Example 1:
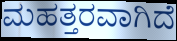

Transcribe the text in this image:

ಮಹತ್ತರವಾಗಿದೆ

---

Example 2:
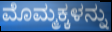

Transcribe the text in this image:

ಮೊಮ್ಮಕ್ಕಳನ್ನು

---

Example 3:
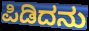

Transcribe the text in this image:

ಪಿಡಿದನು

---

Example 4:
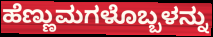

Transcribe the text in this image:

ಹೆಣ್ಣುಮಗಳೊಬ್ಬಳನ್ನು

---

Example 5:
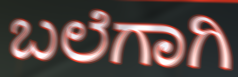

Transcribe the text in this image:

ಬಲೆಗಾಗಿ